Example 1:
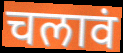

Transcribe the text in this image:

चलावं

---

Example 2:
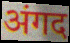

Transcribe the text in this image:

अंगद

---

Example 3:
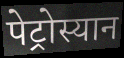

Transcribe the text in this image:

पेट्रोस्यान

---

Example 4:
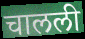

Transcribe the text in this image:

चालली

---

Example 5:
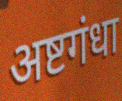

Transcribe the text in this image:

अष्टगंधा